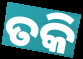
ତକି